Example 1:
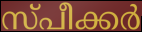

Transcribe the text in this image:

സ്പീക്കർ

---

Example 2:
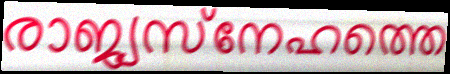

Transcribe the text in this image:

രാജ്യസ്‌നേഹത്തെ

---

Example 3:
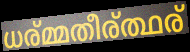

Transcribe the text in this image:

ധര്മ്മതീര്ത്ഥര്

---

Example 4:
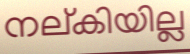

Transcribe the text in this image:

നല്കിയില്ല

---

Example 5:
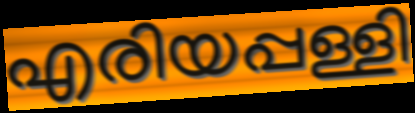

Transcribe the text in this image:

എരിയപ്പള്ളി